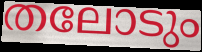
തലോടും